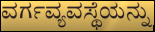
ವರ್ಗವ್ಯವಸ್ಥೆಯನ್ನು